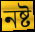
নষ্ট